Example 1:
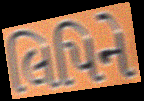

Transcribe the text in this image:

લિપિને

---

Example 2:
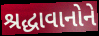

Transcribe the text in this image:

શ્રદ્ધાવાનોને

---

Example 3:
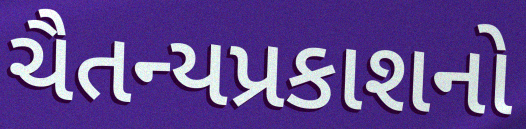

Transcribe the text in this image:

ચૈતન્યપ્રકાશનો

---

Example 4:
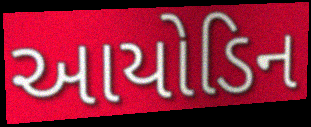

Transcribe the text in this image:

આયોડિન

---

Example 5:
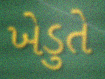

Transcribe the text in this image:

ખેડુતે